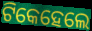
ଟିକେହେଲେ